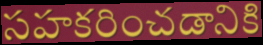
సహకరించడానికి